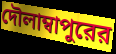
দৌলাম্বাপুরের